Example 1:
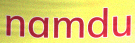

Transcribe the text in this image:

namdu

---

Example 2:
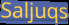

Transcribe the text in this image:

Saljuqs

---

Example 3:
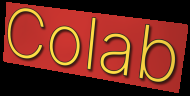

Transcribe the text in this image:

Colab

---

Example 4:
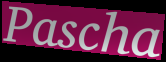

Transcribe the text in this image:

Pascha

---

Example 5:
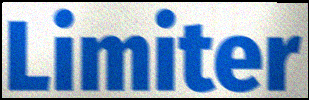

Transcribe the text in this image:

Limiter